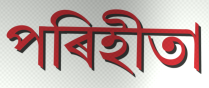
পৰিহীতা